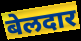
बेलदार